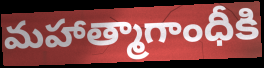
మహాత్మాగాంధీకి